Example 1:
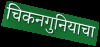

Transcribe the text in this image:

चिकनगुनियाचा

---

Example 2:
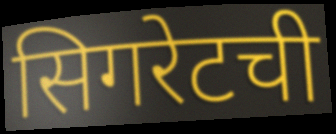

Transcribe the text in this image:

सिगरेटची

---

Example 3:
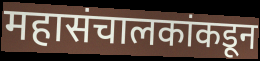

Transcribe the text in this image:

महासंचालकांकडून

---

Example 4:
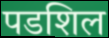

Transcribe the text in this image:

पडशिल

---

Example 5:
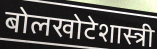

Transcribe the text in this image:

बोलखोटेशास्त्री